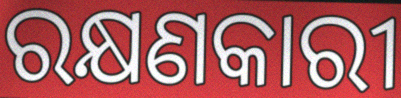
ରକ୍ଷଣକାରୀ